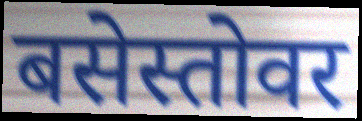
बसेस्तोवर